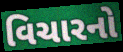
વિચારનો